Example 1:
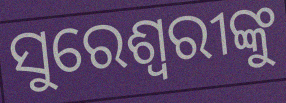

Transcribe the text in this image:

ସୁରେଶ୍ୱରୀଙ୍କୁ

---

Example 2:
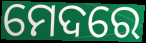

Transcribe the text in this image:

ମେଦରେ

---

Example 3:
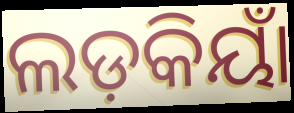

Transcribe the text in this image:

ଲଡ଼କିୟାଁ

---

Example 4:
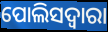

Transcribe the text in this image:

ପୋଲିସଦ୍ୱାରା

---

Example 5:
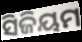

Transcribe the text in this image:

ସିଜିୟମ